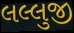
લલ્લુજી